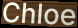
Chloe